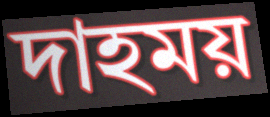
দাহময়